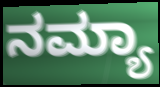
ನಮ್ಯಾ